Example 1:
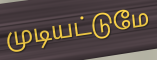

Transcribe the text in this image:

முடியட்டுமே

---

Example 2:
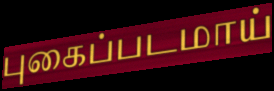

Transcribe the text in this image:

புகைப்படமாய்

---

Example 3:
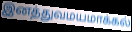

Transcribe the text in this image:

இனத்துவமயமாக்கல்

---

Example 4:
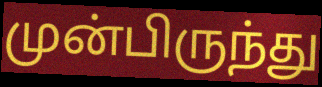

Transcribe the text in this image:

முன்பிருந்து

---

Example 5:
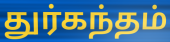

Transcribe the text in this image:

துர்கந்தம்